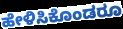
ಹೇಳಿಸಿಕೊಂಡರೂ